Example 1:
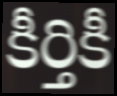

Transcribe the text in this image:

కీర్తికీ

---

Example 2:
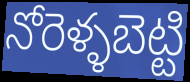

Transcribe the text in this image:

నోరెళ్ళబెట్టి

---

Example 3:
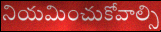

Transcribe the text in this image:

నియమించుకోవాల్సి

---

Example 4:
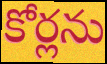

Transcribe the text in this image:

కోర్లను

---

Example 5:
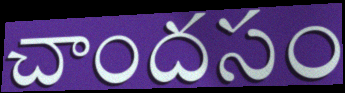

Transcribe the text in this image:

చాందసం